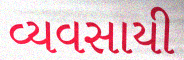
વ્યવસાયી